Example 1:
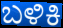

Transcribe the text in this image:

ಬಳಿಕಿ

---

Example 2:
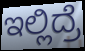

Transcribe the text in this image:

ಇಲ್ಲಿದ್ರೆ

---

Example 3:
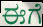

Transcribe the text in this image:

ಈಗೆ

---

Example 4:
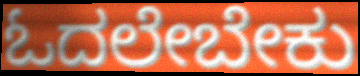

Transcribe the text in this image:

ಓದಲೇಬೇಕು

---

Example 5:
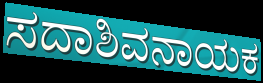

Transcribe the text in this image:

ಸದಾಶಿವನಾಯಕ